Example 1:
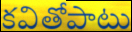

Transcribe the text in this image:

కవితోపాటు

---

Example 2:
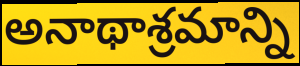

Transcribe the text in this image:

అనాథాశ్రమాన్ని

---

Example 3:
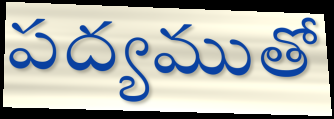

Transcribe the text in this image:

పద్యముతో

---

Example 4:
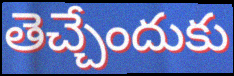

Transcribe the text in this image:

తెచ్చేందుకు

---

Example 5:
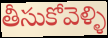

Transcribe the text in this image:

తీసుకోవెళ్ళి